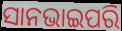
ସାନଭାଇପରି